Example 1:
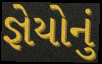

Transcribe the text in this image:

જ્ઞેયોનું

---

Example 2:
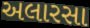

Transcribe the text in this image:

અલારસા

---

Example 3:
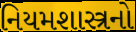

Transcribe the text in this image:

નિયમશાસ્ત્રનો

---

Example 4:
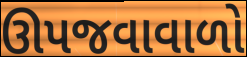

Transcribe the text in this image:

ઊપજવાવાળો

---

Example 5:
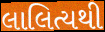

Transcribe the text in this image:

લાલિત્યથી